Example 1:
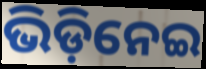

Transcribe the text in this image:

ଭିଡ଼ିନେଇ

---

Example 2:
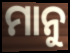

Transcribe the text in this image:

ମାନୁ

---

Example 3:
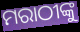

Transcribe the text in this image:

ମରାଠୀଙ୍କୁ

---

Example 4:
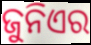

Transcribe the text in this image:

ଜୁନିଏର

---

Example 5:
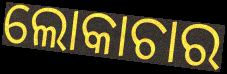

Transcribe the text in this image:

ଲୋକାଚାର